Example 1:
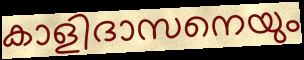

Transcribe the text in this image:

കാളിദാസനെയും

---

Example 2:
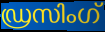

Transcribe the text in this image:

ഡ്രസിംഗ്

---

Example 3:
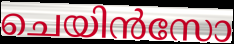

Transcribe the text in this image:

ചെയിൻസോ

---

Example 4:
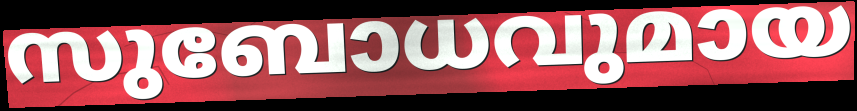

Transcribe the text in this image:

സുബോധവുമായ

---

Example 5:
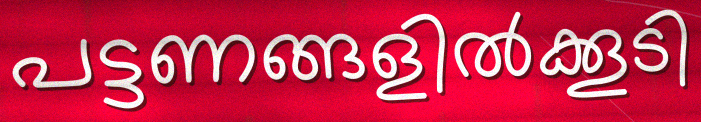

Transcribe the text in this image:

പട്ടണങ്ങളിൽക്കൂടി